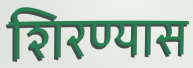
शिरण्यास